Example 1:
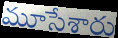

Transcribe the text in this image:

మూసేశారు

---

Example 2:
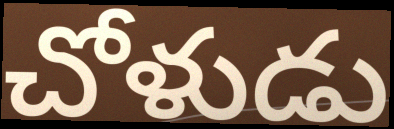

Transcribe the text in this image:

చోళుడు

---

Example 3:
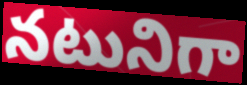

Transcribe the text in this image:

నటునిగా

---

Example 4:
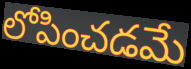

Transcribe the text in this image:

లోపించడమే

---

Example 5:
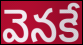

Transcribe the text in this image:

వెనకే